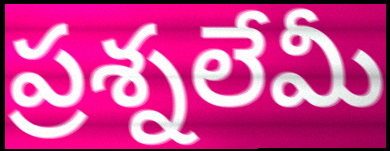
ప్రశ్నలేమీ